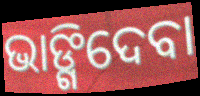
ଭାଙ୍ଗିଦେବା